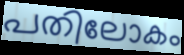
പതിലോകം